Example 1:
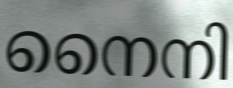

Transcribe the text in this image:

നൈനി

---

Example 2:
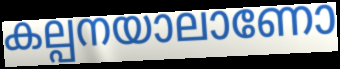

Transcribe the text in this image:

കല്പനയാലാണോ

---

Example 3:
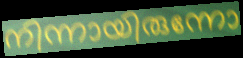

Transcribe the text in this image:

നിന്നായിരുന്നോ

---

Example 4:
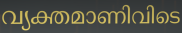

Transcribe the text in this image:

വ്യക്തമാണിവിടെ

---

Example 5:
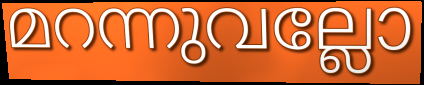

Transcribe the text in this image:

മറന്നുവല്ലോ